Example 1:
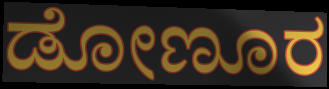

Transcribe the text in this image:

ಡೋಣೂರ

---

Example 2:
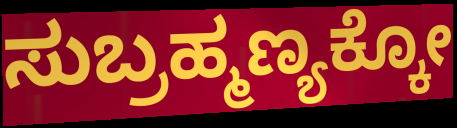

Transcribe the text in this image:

ಸುಬ್ರಹ್ಮಣ್ಯಕ್ಕೋ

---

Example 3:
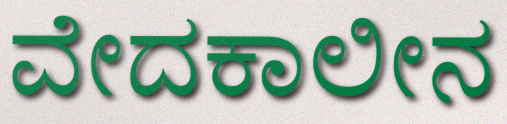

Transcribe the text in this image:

ವೇದಕಾಲೀನ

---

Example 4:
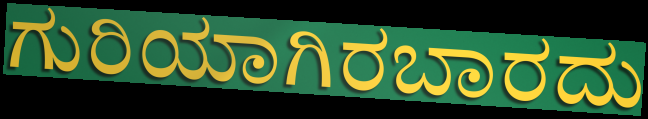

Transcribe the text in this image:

ಗುರಿಯಾಗಿರಬಾರದು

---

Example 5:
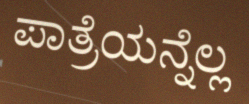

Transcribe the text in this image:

ಪಾತ್ರೆಯನ್ನೆಲ್ಲ